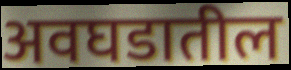
अवघडातील